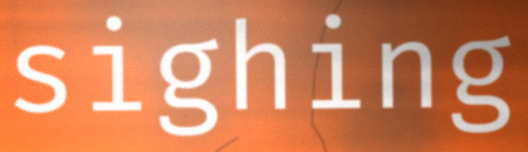
sighing